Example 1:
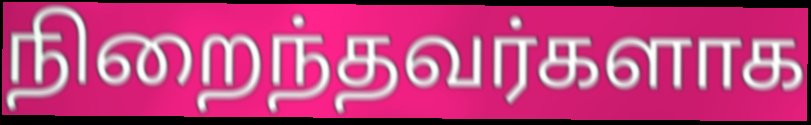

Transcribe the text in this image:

நிறைந்தவர்களாக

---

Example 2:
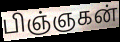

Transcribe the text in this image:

பிஞ்ஞகன்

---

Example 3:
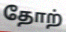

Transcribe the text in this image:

தோற்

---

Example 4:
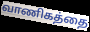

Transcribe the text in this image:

வாணிகத்தை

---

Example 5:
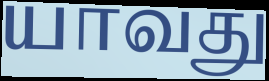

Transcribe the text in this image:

யாவது